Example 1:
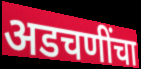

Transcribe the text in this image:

अडचणींचा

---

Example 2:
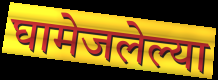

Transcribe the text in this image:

घामेजलेल्या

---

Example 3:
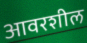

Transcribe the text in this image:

आवरशील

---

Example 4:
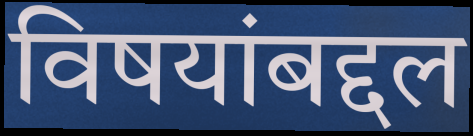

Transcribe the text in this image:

विषयांबद्दल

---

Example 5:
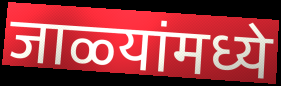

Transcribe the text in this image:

जाळ्यांमध्ये